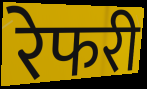
रेफरी